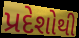
પ્રદેશોથી